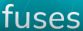
fuses